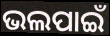
ଭଲପାଇଁ